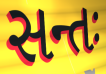
સન્તઃ